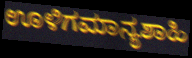
ಊಳಿಗಮಾನ್ಯಶಾಹಿ